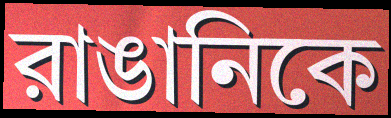
রাঙানিকে